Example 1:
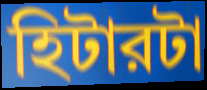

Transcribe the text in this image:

হিটারটা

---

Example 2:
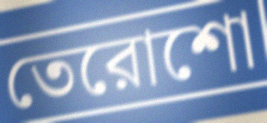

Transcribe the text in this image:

তেরোশো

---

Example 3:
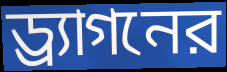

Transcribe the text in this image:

ড্র্যাগনের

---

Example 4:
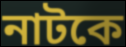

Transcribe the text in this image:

নাটকে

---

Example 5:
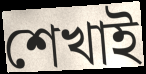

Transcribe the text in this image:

শেখাই